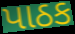
પાઠક